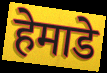
हेमाडे